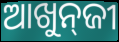
ଆଖୁନ୍‌ଜୀ